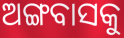
ଅଙ୍ଗବାସକୁ